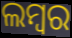
ଲମ୍ୱର